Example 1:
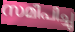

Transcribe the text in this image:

സമീപിച്ചു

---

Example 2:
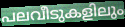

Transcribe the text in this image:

പലവീടുകളിലും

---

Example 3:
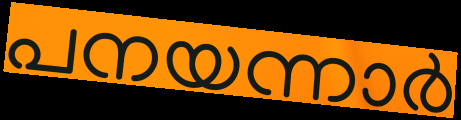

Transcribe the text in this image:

പനയന്നാർ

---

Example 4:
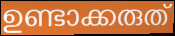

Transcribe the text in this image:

ഉണ്ടാക്കരുത്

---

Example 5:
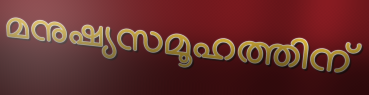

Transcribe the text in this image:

മനുഷ്യസമൂഹത്തിന്